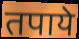
तपाये